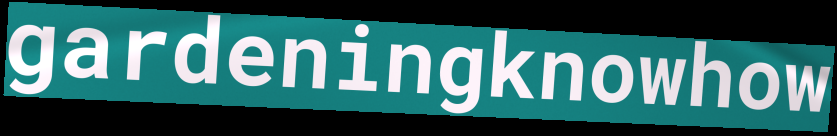
gardeningknowhow